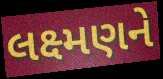
લક્ષ્મણને